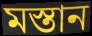
মস্তান